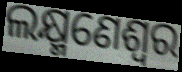
ଲକ୍ଷ୍ମଣେଶ୍ୱର